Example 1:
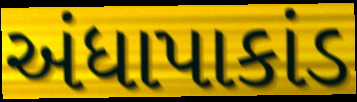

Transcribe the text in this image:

અંધાપાકાંડ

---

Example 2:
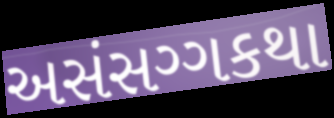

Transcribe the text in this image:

અસંસગ્ગકથા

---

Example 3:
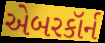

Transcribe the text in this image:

એબરકૉર્ન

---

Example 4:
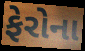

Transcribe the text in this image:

ફેરોના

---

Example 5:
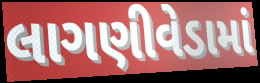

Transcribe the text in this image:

લાગણીવેડામાં